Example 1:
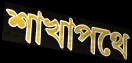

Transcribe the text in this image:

শাখাপথে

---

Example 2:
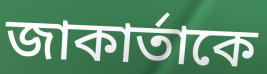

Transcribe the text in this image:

জাকার্তাকে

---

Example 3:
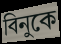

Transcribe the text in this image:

বিনুকে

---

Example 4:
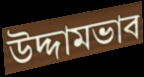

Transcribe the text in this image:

উদ্দামভাব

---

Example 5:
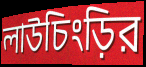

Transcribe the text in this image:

লাউচিংড়ির